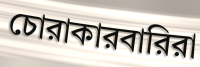
চোরাকারবারিরা